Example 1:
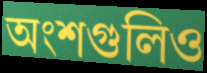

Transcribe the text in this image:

অংশগুলিও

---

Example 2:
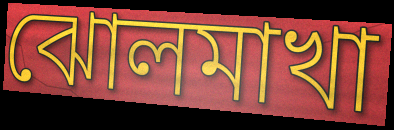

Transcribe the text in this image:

ঝোলমাখা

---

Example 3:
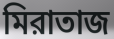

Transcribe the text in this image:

মিরাতাজ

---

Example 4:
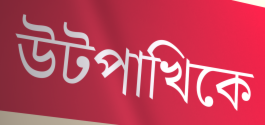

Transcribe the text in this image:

উটপাখিকে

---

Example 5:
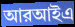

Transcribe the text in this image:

আরআইএ